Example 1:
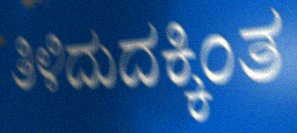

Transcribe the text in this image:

ತಿಳಿದುದಕ್ಕಿಂತ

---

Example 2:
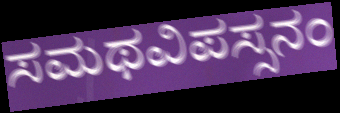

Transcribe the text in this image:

ಸಮಥವಿಪಸ್ಸನಂ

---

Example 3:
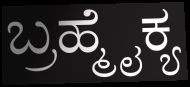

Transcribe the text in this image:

ಬ್ರಹ್ಮೈಕ್ಯ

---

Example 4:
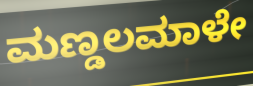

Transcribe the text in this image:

ಮಣ್ಡಲಮಾಳೇ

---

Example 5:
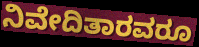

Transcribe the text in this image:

ನಿವೇದಿತಾರವರೂ